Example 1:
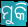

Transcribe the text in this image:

ମୁକି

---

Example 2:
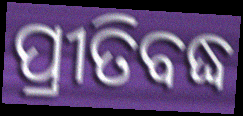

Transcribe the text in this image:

ପ୍ରୀତିବଦ୍ଧ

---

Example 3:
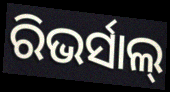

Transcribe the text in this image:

ରିଭର୍ସାଲ୍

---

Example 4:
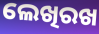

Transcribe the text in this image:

ଲେଖିରଖ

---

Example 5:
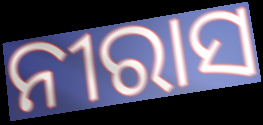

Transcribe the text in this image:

ନୀରାସ